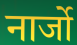
नार्जो